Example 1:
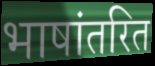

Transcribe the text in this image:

भाषांतरित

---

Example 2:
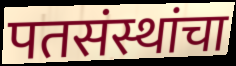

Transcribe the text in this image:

पतसंस्थांचा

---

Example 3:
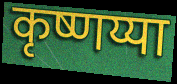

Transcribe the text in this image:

कृष्णय्या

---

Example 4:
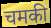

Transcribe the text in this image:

चमकी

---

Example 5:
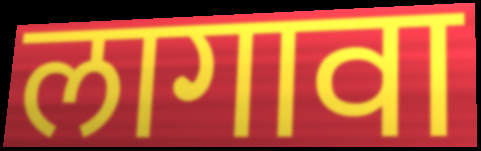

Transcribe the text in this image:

लागावा